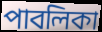
পাবলিকা